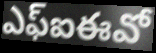
ఎఫ్ఐఈవో